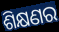
ଶିକ୍ଷଣର